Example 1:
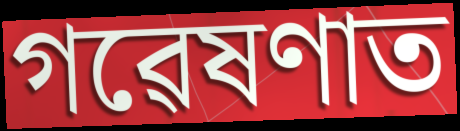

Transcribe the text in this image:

গৱেষণাত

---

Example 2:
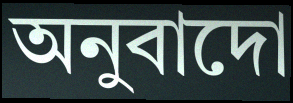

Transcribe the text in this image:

অনুবাদো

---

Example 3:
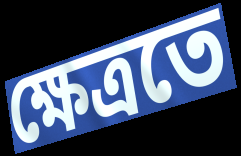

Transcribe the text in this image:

ক্ষেত্ৰতে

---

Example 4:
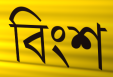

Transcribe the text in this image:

বিংশ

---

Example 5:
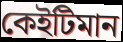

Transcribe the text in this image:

কেইটিমান